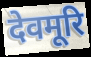
देवमूरि